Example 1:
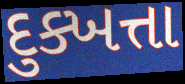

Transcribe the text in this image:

દુક્ખત્તા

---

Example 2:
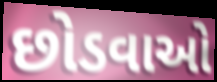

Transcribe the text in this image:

છોડવાઓ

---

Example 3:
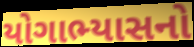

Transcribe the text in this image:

યોગાભ્યાસનો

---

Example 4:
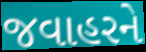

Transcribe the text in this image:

જવાહરને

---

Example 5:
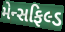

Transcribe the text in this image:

મેન્સફિલ્ડ